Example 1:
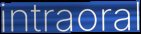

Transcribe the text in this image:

intraoral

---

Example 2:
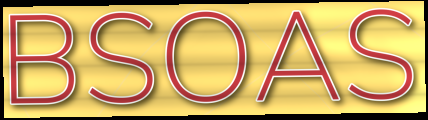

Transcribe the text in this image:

BSOAS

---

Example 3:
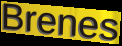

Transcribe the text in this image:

Brenes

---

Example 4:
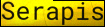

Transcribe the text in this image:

Serapis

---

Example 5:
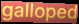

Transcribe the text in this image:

galloped